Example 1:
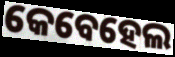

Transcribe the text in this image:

କେବେହେଲ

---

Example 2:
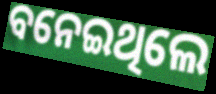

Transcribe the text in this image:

ବନେଇଥିଲେ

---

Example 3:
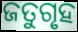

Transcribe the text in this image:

ଜତୁଗୃହ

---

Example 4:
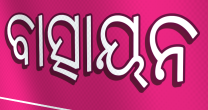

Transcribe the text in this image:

ବାତ୍ସାୟନ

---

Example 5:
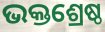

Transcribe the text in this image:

ଭକ୍ତଶ୍ରେଷ୍ଠ